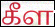
கீள